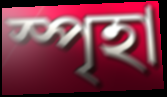
স্পৃহা